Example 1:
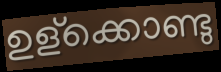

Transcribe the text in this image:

ഉള്ക്കൊണ്ടു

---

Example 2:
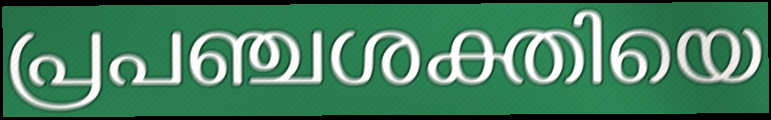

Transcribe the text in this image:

പ്രപഞ്ചശക്തിയെ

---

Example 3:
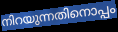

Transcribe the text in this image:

നിറയുന്നതിനൊപ്പം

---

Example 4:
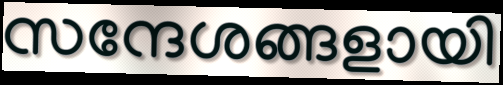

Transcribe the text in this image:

സന്ദേശങ്ങളായി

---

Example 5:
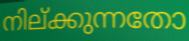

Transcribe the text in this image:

നില്ക്കുന്നതോ